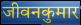
जीवनकुमार